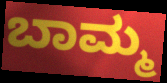
ಬಾಮ್ಮ